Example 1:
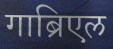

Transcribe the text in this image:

गाब्रिएल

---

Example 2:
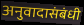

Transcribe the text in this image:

अनुवादासंबंधी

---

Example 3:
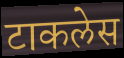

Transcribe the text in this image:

टाकलेस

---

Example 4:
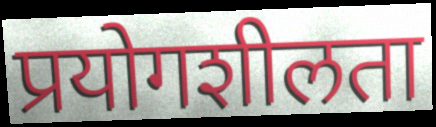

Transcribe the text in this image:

प्रयोगशीलता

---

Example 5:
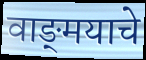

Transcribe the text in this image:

वाङ्‍मयाचे